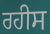
ਰਹੀਸ